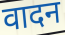
वादन